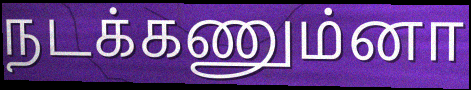
நடக்கணும்னா